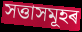
সত্তাসমূহৰ